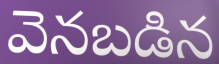
వెనబడిన